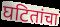
घटितांचा